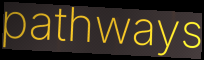
pathways